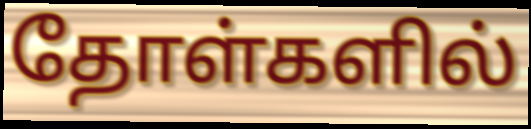
தோள்களில்